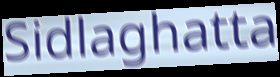
Sidlaghatta